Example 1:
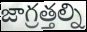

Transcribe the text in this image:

జాగ్రత్తల్ని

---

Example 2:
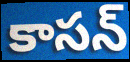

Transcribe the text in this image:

కాసన్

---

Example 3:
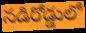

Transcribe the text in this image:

నడిరోడ్డులో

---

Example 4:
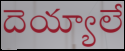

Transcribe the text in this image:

దెయ్యాలే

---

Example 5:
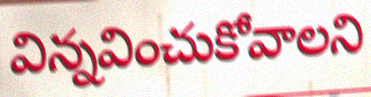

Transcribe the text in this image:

విన్నవించుకోవాలని